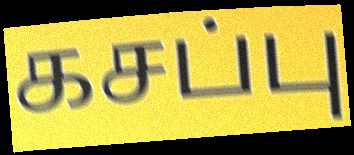
கசப்பு